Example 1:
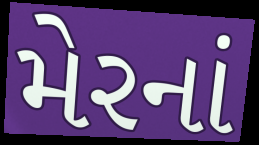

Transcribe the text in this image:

મેરનાં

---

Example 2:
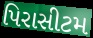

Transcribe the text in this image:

પિરાસીટમ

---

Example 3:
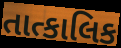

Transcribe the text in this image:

તાત્કાલિક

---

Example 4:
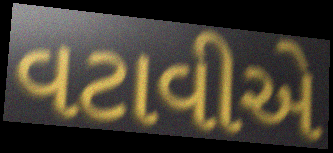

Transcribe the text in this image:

વટાવીએ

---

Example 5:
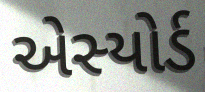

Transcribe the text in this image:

એસ્યોર્ડ